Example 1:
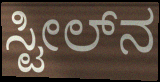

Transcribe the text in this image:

ಸ್ಟೀಲ್‌ನ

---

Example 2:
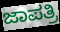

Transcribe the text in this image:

ಜಾಪತ್ರಿ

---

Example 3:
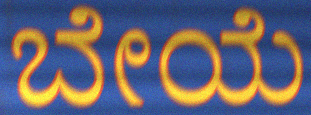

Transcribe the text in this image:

ಬೇಯೆ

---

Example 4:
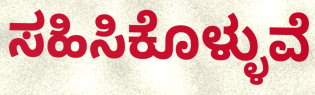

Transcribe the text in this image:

ಸಹಿಸಿಕೊಳ್ಳುವೆ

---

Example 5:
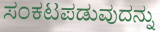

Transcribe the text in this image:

ಸಂಕಟಪಡುವುದನ್ನು